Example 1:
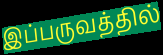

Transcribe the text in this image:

இப்பருவத்தில்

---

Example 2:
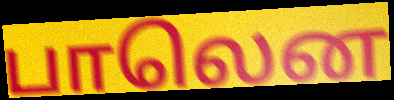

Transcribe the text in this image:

பாலென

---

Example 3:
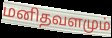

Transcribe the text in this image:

மனிதவளமும்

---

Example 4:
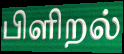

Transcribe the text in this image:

பிளிறல்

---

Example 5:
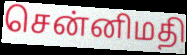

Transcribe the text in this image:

சென்னிமதி